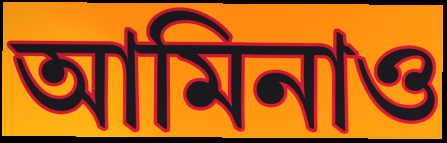
আমিনাও